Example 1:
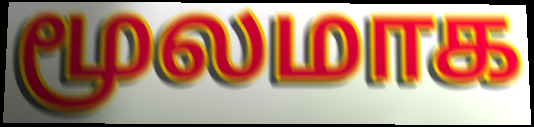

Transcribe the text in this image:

மூலமாக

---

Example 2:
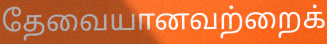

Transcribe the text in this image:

தேவையானவற்றைக்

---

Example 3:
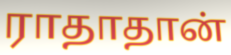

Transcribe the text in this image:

ராதாதான்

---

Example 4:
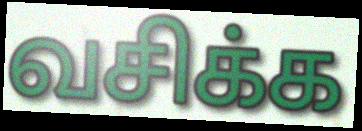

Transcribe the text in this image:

வசிக்க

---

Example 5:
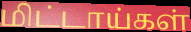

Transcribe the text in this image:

மிட்டாய்கள்